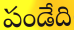
పండేది